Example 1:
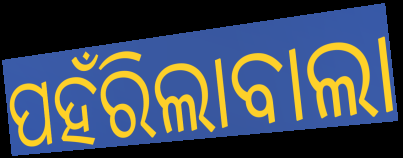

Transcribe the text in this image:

ପହଁରିଲାବାଲା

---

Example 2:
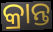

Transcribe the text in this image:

କ୍ରାନ୍ତ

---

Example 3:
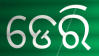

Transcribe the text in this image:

ଡେରି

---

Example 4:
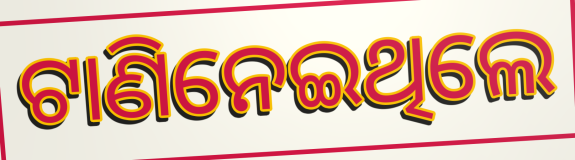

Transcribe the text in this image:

ଟାଣିନେଇଥିଲେ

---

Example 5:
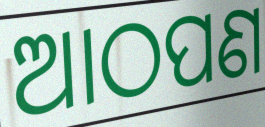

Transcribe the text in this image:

ଆଠପଣ